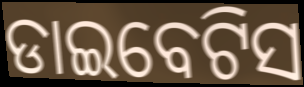
ଡାଇବେଟିସ